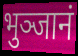
भुञ्जानं